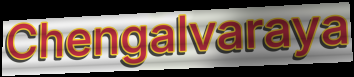
Chengalvaraya